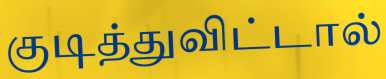
குடித்துவிட்டால்